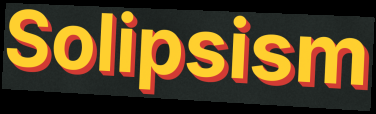
Solipsism